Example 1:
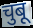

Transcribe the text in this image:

चुबू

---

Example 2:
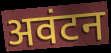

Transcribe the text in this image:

अवंटन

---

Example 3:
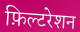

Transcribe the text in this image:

फ़िल्टरेशन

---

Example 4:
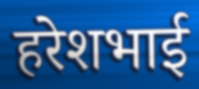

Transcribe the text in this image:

हरेशभाई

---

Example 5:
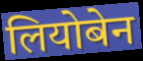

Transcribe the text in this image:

लियोबेन